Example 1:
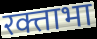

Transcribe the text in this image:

रक्ताभा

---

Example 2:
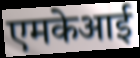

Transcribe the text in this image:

एमकेआई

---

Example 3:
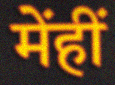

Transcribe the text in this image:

मेंहीं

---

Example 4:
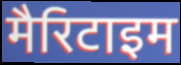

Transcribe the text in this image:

मैरिटाइम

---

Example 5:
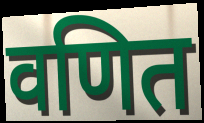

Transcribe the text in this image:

वणित